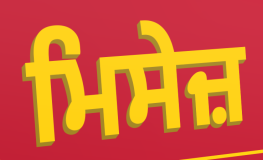
ਮਿਸੇਜ਼